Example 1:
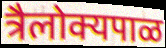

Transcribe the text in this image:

त्रैलोक्यपाळ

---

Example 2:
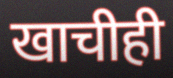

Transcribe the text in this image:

खाचीही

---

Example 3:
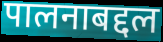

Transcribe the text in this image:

पालनाबद्दल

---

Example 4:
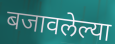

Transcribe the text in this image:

बजावलेल्या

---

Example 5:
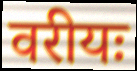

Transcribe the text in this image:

वरीयः